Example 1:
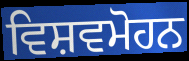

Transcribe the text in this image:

ਵਿਸ਼ਵਮੋਹਨ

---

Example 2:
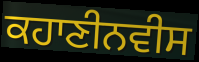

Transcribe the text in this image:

ਕਹਾਣੀਨਵੀਸ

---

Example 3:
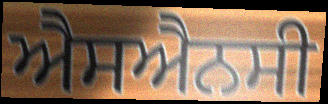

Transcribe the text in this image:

ਐਸਐਨਸੀ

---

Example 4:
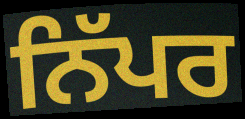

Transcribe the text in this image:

ਨਿੱਪਰ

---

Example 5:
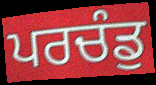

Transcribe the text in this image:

ਪਰਚੰਡੁ